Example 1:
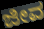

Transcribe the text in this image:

ಜೀವ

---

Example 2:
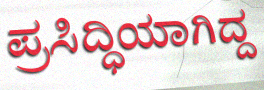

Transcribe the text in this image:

ಪ್ರಸಿದ್ಧಿಯಾಗಿದ್ದ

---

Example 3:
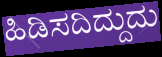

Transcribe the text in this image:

ಹಿಡಿಸದಿದ್ದುದು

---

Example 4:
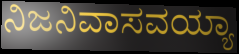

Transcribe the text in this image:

ನಿಜನಿವಾಸವಯ್ಯಾ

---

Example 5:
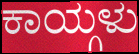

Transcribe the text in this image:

ಕಾಯ್ಗಳು